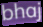
bhaj